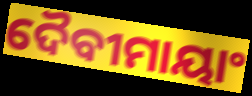
ଦୈବୀମାୟାଂ